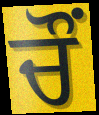
ਚੌਂ